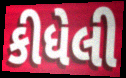
કીધેલી